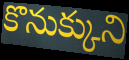
కొనుక్కుని